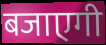
बजाएगी